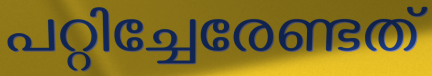
പറ്റിച്ചേരേണ്ടത്